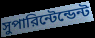
সুপারিন্টেন্ডেন্ট